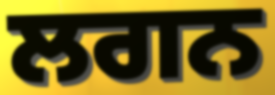
ਲਗਨ